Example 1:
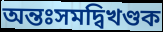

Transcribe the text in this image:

অন্তঃসমদ্বিখণ্ডক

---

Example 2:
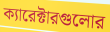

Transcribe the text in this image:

ক্যারেক্টারগুলোর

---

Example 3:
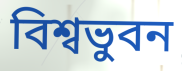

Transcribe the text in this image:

বিশ্বভুবন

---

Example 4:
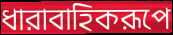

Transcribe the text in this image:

ধারাবাহিকরূপে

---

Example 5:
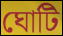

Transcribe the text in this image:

ঘোটি